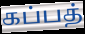
கப்பத்